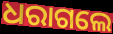
ଧରାଗଲେ